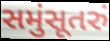
સમુંસૂતરું